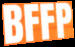
BFFP